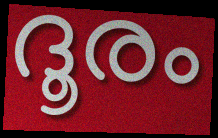
ദൂരം